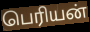
பெரியன்